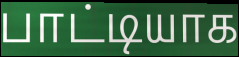
பாட்டியாக